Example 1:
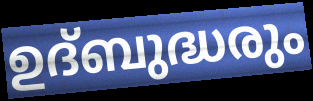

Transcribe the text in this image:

ഉദ്ബുദ്ധരും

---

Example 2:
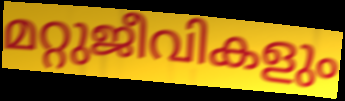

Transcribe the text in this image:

മറ്റുജീവികളും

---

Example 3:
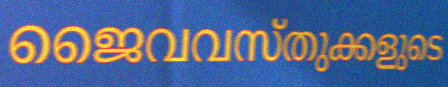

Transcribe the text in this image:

ജൈവവസ്തുക്കളുടെ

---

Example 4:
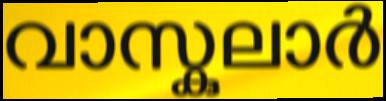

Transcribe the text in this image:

വാസ്കുലാർ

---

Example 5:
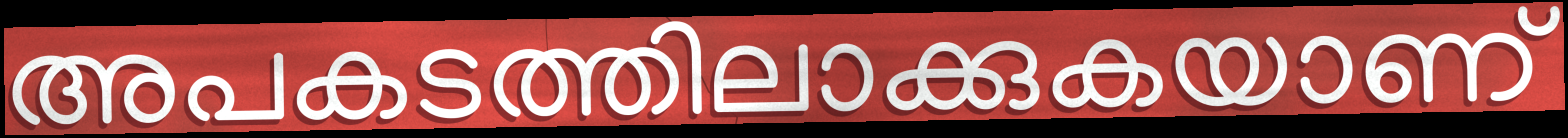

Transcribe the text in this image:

അപകടത്തിലാക്കുകയാണ്